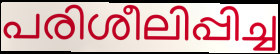
പരിശീലിപ്പിച്ച